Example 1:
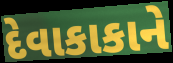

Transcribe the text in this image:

દેવાકાકાને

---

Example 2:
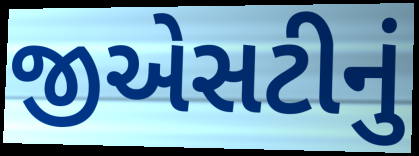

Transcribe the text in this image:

જીએસટીનું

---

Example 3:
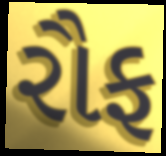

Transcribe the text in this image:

રૌફ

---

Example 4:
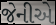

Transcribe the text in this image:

જેનીએ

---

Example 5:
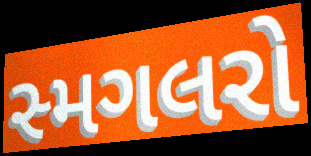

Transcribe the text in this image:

સ્મગલરો